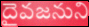
దైవజనుని